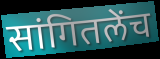
सांगितलेंच